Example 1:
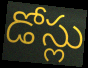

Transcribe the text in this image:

డోస్లు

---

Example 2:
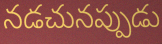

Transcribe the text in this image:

నడచునప్పుడు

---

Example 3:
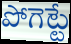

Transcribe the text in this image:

పోగెట్టే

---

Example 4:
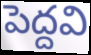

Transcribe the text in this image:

పెద్దవి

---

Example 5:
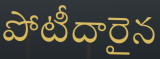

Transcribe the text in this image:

పోటీదారైన